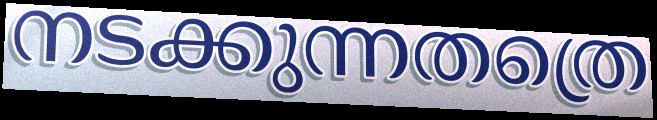
നടക്കുന്നതത്രെ